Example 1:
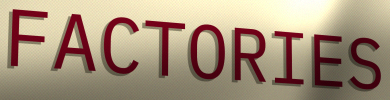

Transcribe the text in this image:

FACTORIES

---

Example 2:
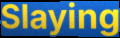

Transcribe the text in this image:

Slaying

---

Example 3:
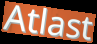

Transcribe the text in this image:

Atlast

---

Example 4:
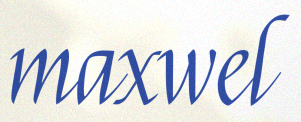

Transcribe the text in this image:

maxwel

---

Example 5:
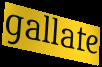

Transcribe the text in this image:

gallate